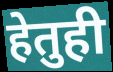
हेतुही